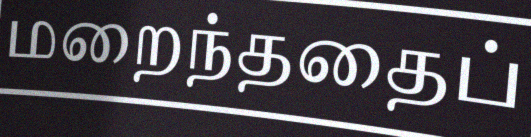
மறைந்ததைப்